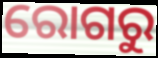
ରୋଗରୁ